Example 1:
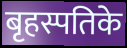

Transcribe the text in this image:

बृहस्पतिके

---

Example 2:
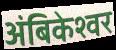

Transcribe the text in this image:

अंबिकेश्वर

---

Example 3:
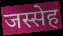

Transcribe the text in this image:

जस्सेह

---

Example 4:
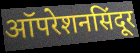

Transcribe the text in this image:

ऑपरेशनसिंदूर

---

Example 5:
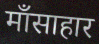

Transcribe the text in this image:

माँसाहार